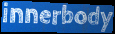
innerbody